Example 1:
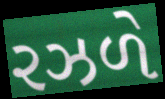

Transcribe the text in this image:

રઝળે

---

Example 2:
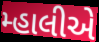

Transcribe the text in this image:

મ્હાલીએ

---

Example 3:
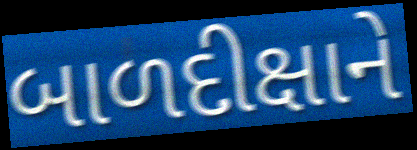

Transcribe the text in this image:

બાળદીક્ષાને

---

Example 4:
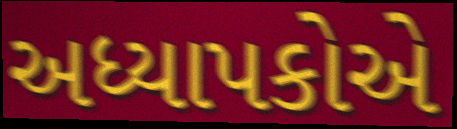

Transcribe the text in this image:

અધ્યાપકોએ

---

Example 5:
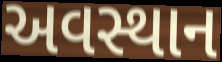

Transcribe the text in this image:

અવસ્થાન